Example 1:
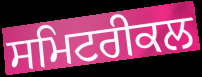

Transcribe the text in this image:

ਸਮਿਟਰੀਕਲ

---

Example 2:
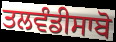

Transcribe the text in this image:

ਤਲਵੰਡੀਸਾਬੋ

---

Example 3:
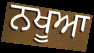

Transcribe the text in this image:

ਨਖੂਆ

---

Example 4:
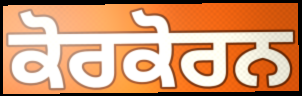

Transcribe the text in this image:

ਕੋਰਕੋਰਨ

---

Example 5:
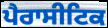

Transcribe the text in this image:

ਪੈਰਾਸੀਟਿਕ